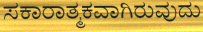
ಸಕಾರಾತ್ಮಕವಾಗಿರುವುದು